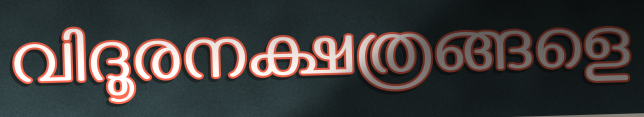
വിദൂരനക്ഷത്രങ്ങളെ